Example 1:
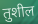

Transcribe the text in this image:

तुशील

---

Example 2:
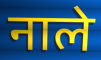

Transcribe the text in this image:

नाले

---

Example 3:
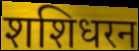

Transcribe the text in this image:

शशिधरन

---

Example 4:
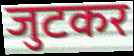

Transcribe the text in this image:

जुटकर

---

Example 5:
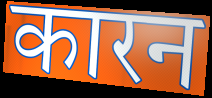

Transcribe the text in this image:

कारन